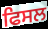
ਫਿਸਲ